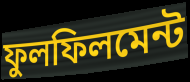
ফুলফিলমেন্ট